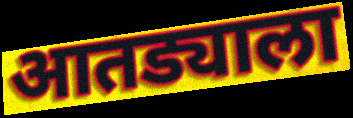
आतड्याला